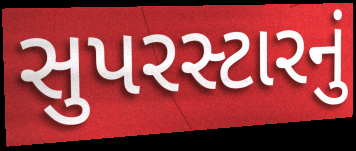
સુપરસ્ટારનું